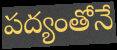
పద్యంతోనే